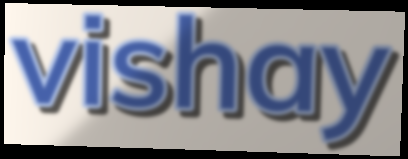
vishay